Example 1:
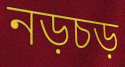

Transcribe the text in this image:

নড়চড়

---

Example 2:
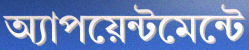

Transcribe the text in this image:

অ্যাপয়েন্টমেন্টে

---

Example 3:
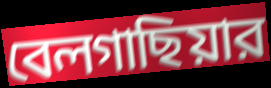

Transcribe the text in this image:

বেলগাছিয়ার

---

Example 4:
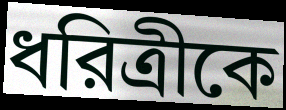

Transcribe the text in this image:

ধরিত্রীকে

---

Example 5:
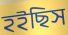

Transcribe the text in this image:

হইছিস